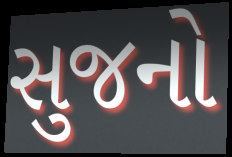
સુજનો